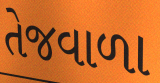
તેજવાળા